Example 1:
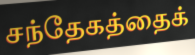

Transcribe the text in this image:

சந்தேகத்தைக்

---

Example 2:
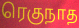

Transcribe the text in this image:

ரெகுநாத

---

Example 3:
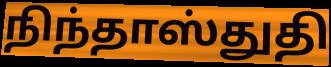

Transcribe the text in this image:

நிந்தாஸ்துதி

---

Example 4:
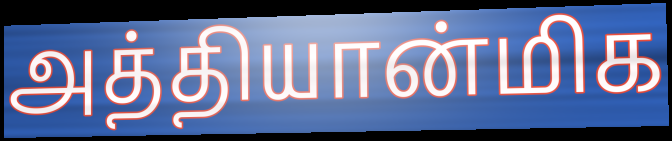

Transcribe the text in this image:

அத்தியான்மிக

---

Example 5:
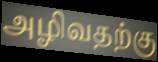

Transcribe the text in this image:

அழிவதற்கு